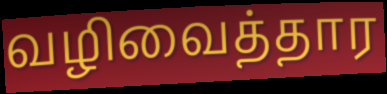
வழிவைத்தார